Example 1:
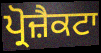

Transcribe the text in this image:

ਪ੍ਰੋਜ਼ੈਕਟਾ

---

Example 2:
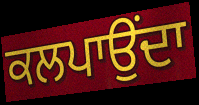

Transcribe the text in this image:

ਕਲਪਾਉਂਦਾ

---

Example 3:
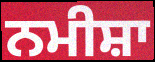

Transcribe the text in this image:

ਨਮੀਸ਼ਾ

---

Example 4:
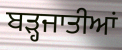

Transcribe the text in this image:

ਬੜ੍ਹਜਾਤੀਆਂ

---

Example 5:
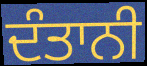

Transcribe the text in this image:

ਦੰਤਾਨੀ